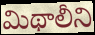
మిథాలీని